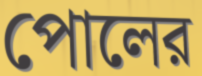
পোলের